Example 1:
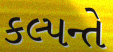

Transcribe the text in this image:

કલ્પન્તે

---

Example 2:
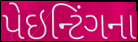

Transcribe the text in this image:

પેઇન્ટિંગના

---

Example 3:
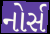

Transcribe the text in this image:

નોર્સ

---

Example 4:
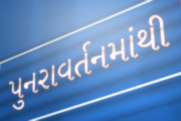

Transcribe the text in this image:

પુનરાવર્તનમાંથી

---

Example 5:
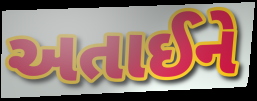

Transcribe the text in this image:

અતાઈને